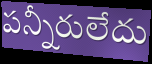
పన్నీరులేదు